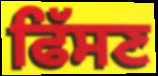
ਫਿੱਸਣ